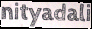
nityadali